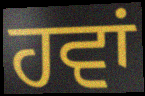
ਹਵਾਂ